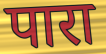
पारा